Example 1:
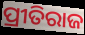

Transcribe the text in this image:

ପ୍ରୀତିରାଜ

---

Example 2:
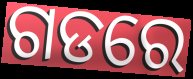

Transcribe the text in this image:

ଗଡରେ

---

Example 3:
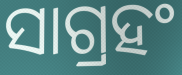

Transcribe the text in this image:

ସାଗ୍ରହଂ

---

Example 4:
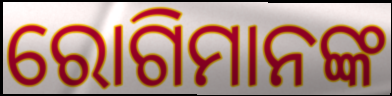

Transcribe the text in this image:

ରୋଗିମାନଙ୍କ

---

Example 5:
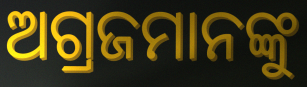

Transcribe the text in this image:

ଅଗ୍ରଜମାନଙ୍କୁ